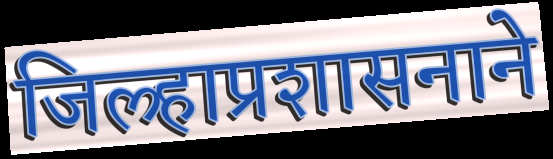
जिल्हाप्रशासनाने